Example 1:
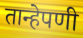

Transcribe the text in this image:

तान्हेपणी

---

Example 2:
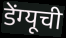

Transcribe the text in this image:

डेंग्यूची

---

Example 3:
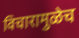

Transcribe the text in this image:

विचारामुळेच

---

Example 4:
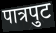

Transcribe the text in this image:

पात्रपुट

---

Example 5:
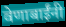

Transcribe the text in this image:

वेणाबाईंनी